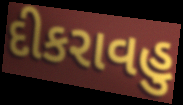
દીકરાવહુ